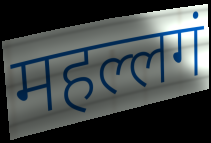
महल्लगं